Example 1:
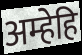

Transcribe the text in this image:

अम्हेहि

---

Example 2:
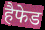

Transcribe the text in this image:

हैफेड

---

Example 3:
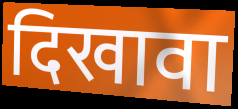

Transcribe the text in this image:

दिखावा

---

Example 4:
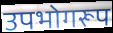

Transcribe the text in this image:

उपभोगरूप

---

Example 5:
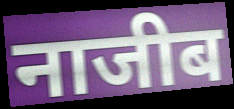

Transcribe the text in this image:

नाजीब